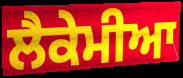
ਲੈਕੇਮੀਆ